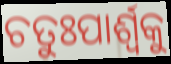
ଚତୁଃପାର୍ଶ୍ୱକୁ